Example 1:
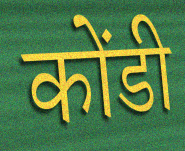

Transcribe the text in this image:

कोंडी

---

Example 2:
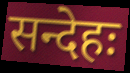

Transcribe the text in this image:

सन्देहः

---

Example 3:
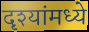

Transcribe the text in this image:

दृश्यांमध्ये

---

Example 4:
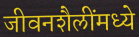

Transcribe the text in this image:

जीवनशैलींमध्ये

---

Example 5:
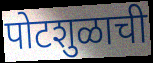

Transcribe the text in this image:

पोटशुळाची